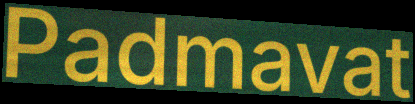
Padmavat